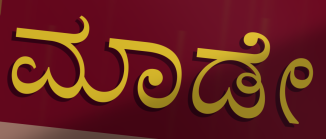
ಮಾಡೇ